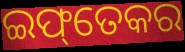
ଇଫ୍‌ତେକର